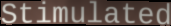
Stimulated